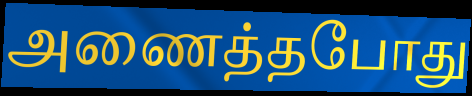
அணைத்தபோது